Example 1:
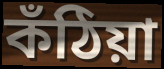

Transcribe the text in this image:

কঁঠিয়া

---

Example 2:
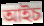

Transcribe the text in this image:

আইচ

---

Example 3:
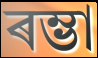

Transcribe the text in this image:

ৰম্ভা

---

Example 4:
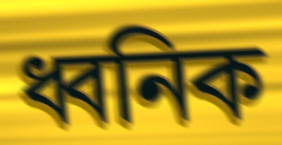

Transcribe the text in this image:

ধ্বনিক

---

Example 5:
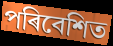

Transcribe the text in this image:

পৰিবেশিত